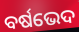
ବର୍ଷଭେଦ